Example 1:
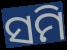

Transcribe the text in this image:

ସମି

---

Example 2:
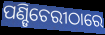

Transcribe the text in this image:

ପଣ୍ଡିଚେରୀଠାରେ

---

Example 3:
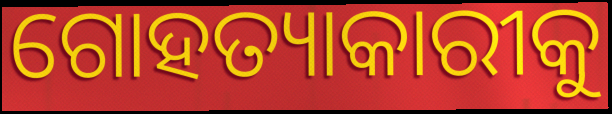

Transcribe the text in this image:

ଗୋହତ୍ୟାକାରୀକୁ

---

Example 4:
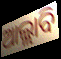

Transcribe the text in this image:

ଆଲ୍ଲାବି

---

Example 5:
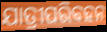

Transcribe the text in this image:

ଯାତ୍ରୀପରିବହନ